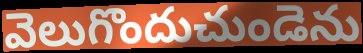
వెలుగొందుచుండెను